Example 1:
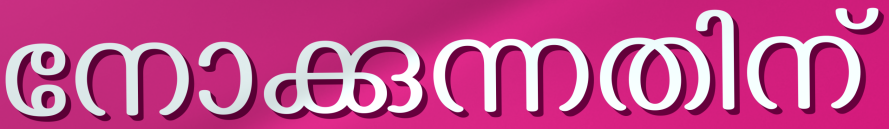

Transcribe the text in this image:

നോക്കുന്നതിന്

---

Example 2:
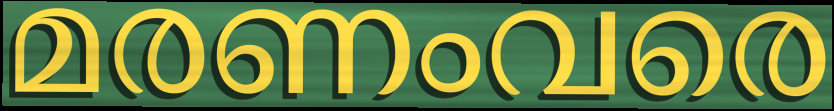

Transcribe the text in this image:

മരണംവരെ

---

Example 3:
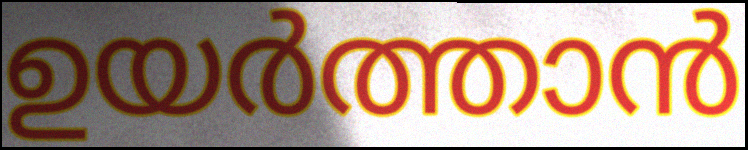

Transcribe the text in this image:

ഉയർത്താൻ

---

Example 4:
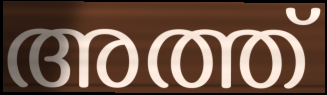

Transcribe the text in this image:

അത്ത്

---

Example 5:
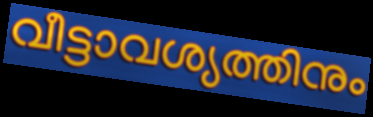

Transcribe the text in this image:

വീട്ടാവശ്യത്തിനും